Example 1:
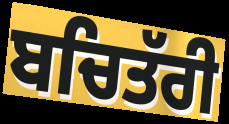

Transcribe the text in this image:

ਬਚਿਤੱਰੀ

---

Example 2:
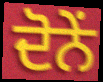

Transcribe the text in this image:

ਦੋਨੇਂ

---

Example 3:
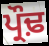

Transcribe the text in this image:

ਪ੍ਰੌਢ਼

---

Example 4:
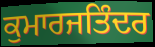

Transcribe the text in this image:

ਕੁਮਾਰਜਤਿੰਦਰ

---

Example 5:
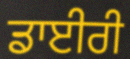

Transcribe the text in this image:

ਡਾਈਰੀ